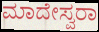
ಮಾದೇಸ್ವರಾ